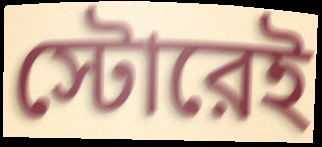
স্টোরেই